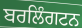
ਬਰਲਿੰਗਟਨ